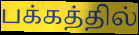
பக்கத்தில்